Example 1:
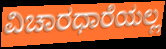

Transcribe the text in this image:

ವಿಚಾರಧಾರೆಯಲ್ಲ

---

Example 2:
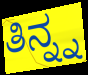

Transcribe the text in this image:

ತಿನ್ನ್ನ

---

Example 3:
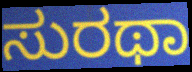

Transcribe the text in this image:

ಸುರಥಾ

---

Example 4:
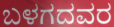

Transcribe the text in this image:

ಬಳಗದವರ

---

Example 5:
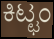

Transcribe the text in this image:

ಕಿಟ್ಟಂ